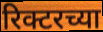
रिक्टरच्या